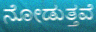
ನೋಡುತ್ತವೆ